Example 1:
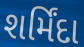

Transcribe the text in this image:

શર્મિંદા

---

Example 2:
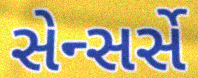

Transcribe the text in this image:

સેન્સર્સે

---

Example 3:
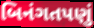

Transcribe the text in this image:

બિનંગતપણું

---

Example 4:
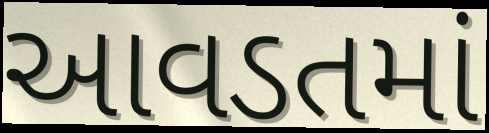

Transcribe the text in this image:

આવડતમાં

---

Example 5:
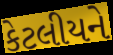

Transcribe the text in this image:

કેટલીયને